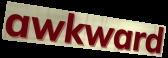
awkward